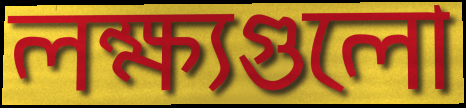
লক্ষ্যগুলো